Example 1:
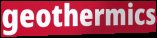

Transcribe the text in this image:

geothermics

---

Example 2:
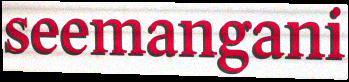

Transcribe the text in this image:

seemangani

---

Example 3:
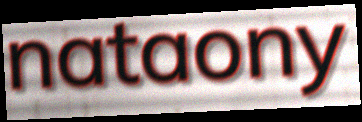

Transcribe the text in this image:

nataony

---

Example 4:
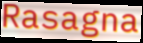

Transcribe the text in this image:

Rasagna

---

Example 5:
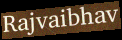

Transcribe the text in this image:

Rajvaibhav